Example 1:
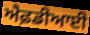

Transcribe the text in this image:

ਐਫ਼ਡੀਆਈ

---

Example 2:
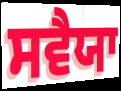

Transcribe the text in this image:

ਸਵੈਯਾ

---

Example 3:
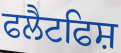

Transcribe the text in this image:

ਫਲੈਟਫਿਸ਼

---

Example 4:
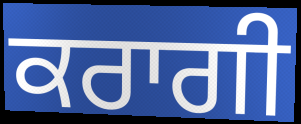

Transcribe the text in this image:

ਕਰਾਗੀ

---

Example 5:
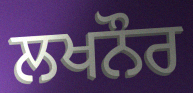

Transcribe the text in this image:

ਲਖਨੌਰ